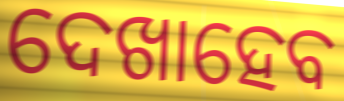
ଦେଖାହେବ